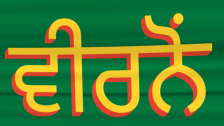
ਵੀਰਨੋਂ